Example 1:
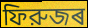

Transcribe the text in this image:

ফিৰুজৰ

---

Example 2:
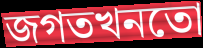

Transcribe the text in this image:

জগতখনতো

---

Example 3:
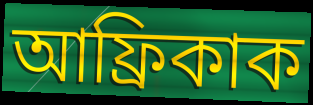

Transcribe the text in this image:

আফ্ৰিকাক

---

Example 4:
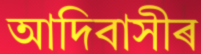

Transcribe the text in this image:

আদিবাসীৰ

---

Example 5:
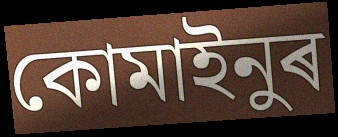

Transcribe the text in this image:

কোমাইনুৰ